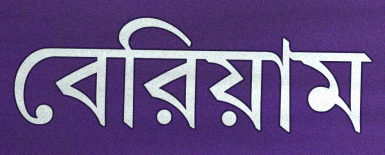
বেরিয়াম